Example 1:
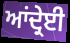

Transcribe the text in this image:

ਆਂਦ੍ਰੇਈ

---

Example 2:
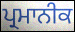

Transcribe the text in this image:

ਪ੍ਰਮਾਨੀਕ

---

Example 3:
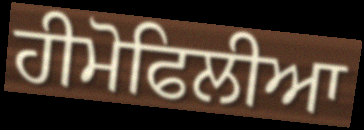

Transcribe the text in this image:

ਹੀਮੋਫਿਲੀਆ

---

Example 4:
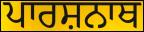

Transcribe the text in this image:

ਪਾਰਸ਼ਨਾਥ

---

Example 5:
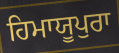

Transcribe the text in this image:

ਹਿਮਾਯੂਪੁਰਾ